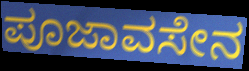
ಪೂಜಾವಸೇನ